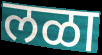
लळा